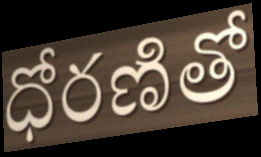
ధోరణితో